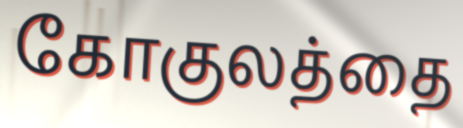
கோகுலத்தை